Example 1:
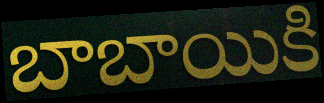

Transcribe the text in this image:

బాబాయికి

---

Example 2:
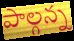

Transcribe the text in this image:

పాల్గన్న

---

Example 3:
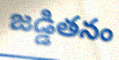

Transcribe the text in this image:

జడ్డితనం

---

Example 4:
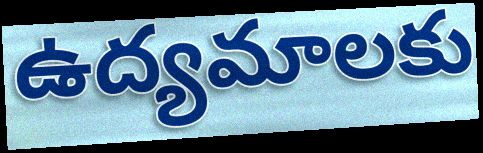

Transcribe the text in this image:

ఉద్యమాలకు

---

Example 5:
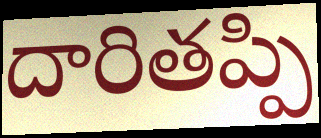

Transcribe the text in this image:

దారితప్పి